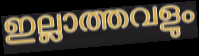
ഇല്ലാത്തവളും